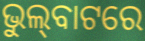
ଭୁଲ୍‌ବାଟରେ